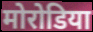
मोरोडिया